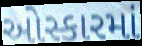
ઓસ્કારમાં